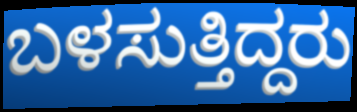
ಬಳಸುತ್ತಿದ್ದರು